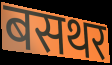
बसथर